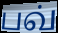
பவ்